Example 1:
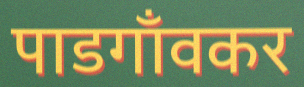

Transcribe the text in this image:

पाडगाँवकर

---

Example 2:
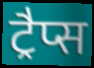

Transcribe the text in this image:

ट्रैप्स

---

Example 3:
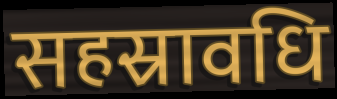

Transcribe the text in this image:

सहस्रावधि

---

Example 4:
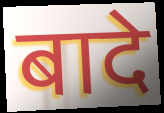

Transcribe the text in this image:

बादे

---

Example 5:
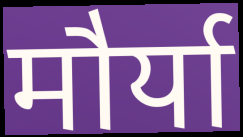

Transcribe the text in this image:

मौर्या